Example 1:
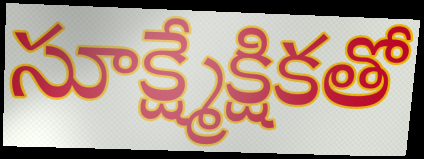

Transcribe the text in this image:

సూక్ష్మేక్షికతో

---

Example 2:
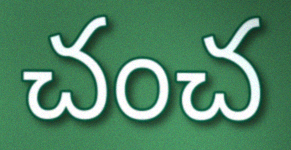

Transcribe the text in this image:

చంచ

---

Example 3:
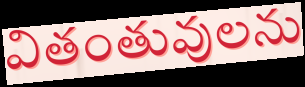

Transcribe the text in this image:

వితంతువులను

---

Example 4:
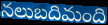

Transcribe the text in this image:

నలుబదిమంది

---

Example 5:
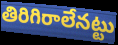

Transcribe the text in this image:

తిరిగిరాలేనట్టు